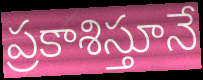
ప్రకాశిస్తూనే